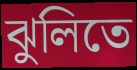
ঝুলিতে